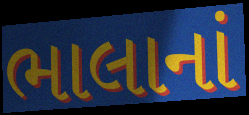
ભાલાનાં